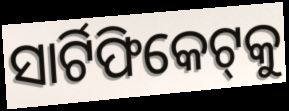
ସାର୍ଟିଫିକେଟ୍‌କୁ